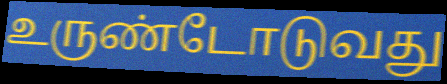
உருண்டோடுவது